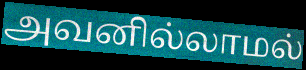
அவனில்லாமல்